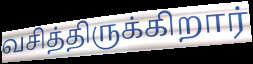
வசித்திருக்கிறார்